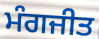
ਮੰਗਜੀਤ